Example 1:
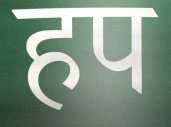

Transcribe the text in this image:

हप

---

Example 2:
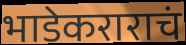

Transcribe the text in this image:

भाडेकराराचं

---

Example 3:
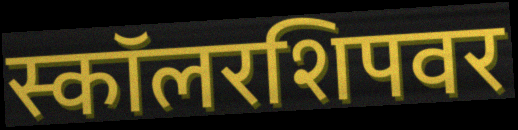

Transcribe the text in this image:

स्कॉलरशिपवर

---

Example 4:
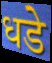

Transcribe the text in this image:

धडे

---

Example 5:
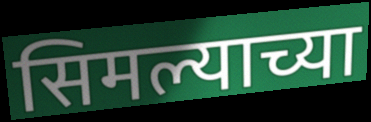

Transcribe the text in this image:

सिमल्याच्या